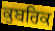
ਕੁਬਰਿਕ